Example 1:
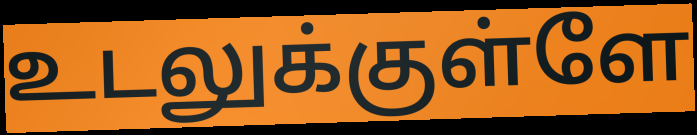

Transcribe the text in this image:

உடலுக்குள்ளே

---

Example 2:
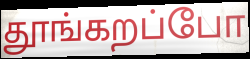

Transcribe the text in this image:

தூங்கறப்போ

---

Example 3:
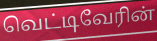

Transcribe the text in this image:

வெட்டிவேரின்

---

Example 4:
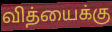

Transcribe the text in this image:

வித்யைக்கு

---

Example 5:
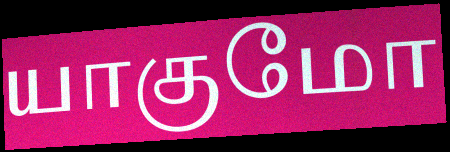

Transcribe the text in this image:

யாகுமோ